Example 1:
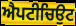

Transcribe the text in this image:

ਐਪਟੀਚਿਉਟ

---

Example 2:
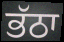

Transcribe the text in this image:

ਭੱਠਾ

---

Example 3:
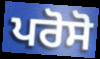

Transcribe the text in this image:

ਪਰੋਸੋ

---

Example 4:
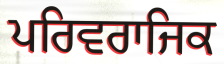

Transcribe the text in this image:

ਪਰਿਵਰਾਜਿਕ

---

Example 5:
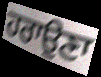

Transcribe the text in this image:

ਹਰਾਉਣਾ